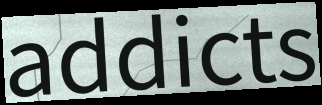
addicts